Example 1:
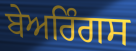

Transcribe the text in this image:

ਬੇਅਰਿੰਗਸ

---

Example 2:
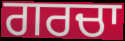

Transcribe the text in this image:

ਗਰਚਾ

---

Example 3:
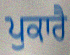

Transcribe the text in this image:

ਪੁਕਾਰੈ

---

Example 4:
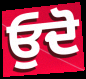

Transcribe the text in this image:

ਓੁਦੋ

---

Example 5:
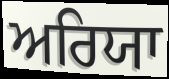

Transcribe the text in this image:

ਅਰਿਯਾ